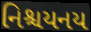
નિશ્ચયનય